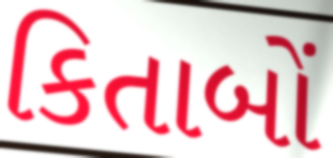
કિતાબોં